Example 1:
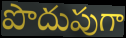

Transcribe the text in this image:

పొదుపుగా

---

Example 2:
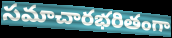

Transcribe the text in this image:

సమాచారభరితంగా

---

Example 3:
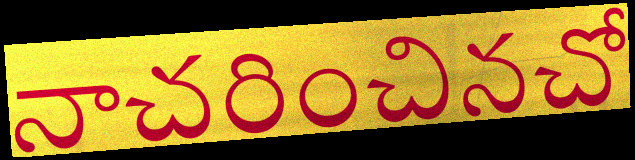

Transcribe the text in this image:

నాచరించినచో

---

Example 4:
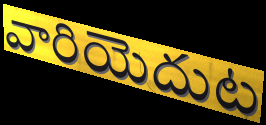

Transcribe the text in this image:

వారియెదుట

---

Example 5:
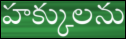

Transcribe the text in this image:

హక్కులను